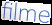
filme